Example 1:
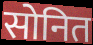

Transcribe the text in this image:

सोनित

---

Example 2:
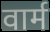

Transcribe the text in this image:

वार्म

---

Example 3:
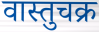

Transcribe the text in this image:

वास्तुचक्र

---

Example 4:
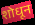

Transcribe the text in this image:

शोधून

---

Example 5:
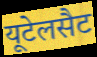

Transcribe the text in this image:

यूटेलसैट